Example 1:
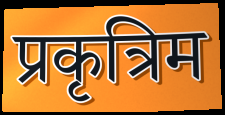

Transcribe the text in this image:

प्रकृत्रिम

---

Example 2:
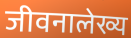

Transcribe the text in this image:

जीवनालेख्य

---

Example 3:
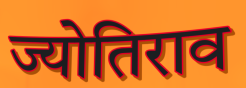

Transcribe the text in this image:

ज्‍योतिराव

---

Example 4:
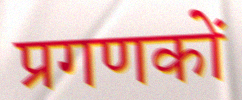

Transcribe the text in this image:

प्रगणकों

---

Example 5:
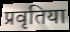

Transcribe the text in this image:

प्रवृतिया